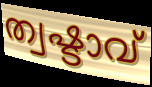
ത്വഷ്ടാവ്